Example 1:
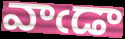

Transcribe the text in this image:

వాఁడా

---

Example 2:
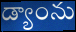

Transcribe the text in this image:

డ్యాంను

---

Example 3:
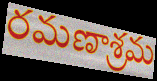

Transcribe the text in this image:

రమణాశ్రమ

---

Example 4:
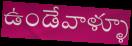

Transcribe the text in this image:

ఉండేవాళ్ళూ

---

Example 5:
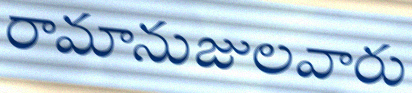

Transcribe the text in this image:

రామానుజులవారు